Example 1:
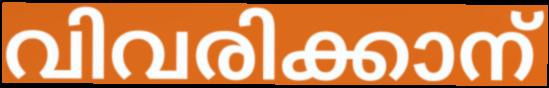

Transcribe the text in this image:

വിവരിക്കാന്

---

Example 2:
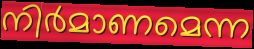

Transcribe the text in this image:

നിർമാണമെന്ന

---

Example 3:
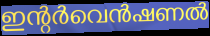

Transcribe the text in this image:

ഇന്റർവെൻഷണൽ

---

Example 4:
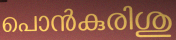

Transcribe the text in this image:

പൊൻകുരിശു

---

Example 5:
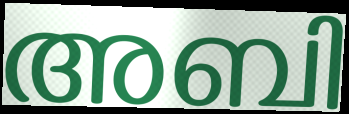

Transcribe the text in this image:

അബി